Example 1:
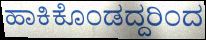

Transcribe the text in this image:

ಹಾಕಿಕೊಂಡದ್ದರಿಂದ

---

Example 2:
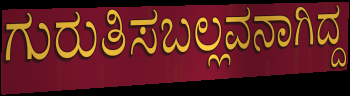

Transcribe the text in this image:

ಗುರುತಿಸಬಲ್ಲವನಾಗಿದ್ದ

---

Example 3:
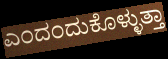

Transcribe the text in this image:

ಎಂದಂದುಕೊಳ್ಳುತ್ತಾ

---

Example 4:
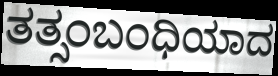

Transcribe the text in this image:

ತತ್ಸಂಬಂಧಿಯಾದ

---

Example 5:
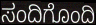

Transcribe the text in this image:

ಸಂದಿಗೊಂದಿ